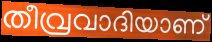
തീവ്രവാദിയാണ്